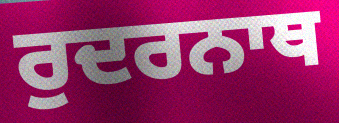
ਰੁਦਰਨਾਥ